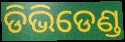
ଡିଭିଡେଣ୍ଡ